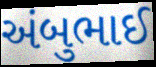
અંબુભાઈ